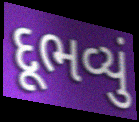
દૂભવ્યું